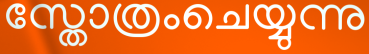
സ്തോത്രംചെയ്യുന്നു